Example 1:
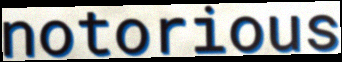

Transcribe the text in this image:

notorious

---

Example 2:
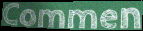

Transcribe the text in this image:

Commen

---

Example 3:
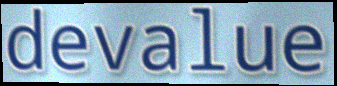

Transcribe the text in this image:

devalue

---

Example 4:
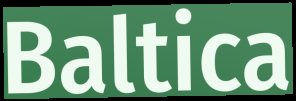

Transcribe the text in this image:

Baltica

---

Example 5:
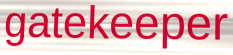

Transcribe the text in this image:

gatekeeper